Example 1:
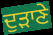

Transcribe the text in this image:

ਦੁੜਾਣੇ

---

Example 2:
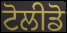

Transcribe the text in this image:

ਟੋਲੀਡੋ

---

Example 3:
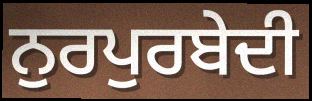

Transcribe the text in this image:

ਨੁਰਪੁਰਬੇਦੀ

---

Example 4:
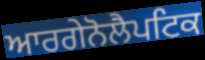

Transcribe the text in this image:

ਆਰਗੇਨੋਲੈਪਟਿਕ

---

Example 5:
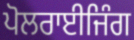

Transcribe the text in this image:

ਪੋਲਰਾਈਜਿੰਗ